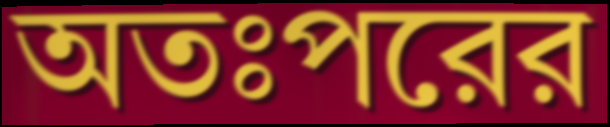
অতঃপরের